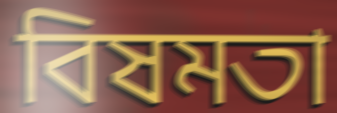
বিষমতা